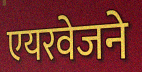
एयरवेजने